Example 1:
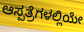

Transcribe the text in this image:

ಆಸ್ಪತ್ರೆಗಳಲ್ಲಿಯೇ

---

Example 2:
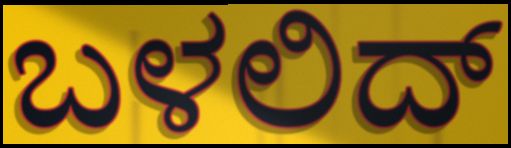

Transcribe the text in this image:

ಬಳಲಿದ್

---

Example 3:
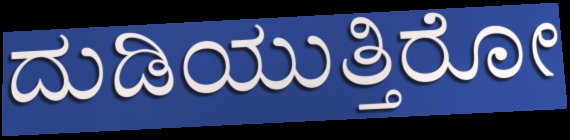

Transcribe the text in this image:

ದುಡಿಯುತ್ತಿರೋ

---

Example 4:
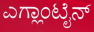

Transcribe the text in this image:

ಎಗ್ಲಾಂಟೈನ್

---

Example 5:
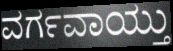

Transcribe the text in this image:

ವರ್ಗವಾಯ್ತು